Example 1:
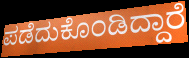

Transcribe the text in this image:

ಪಡೆದುಕೊಂಡಿದ್ದಾರೆ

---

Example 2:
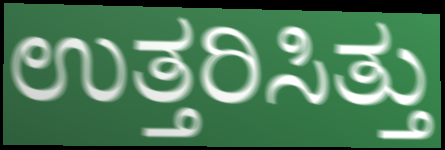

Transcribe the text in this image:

ಉತ್ತರಿಸಿತ್ತು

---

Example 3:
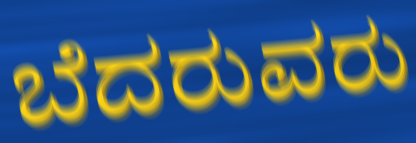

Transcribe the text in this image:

ಬೆದರುವರು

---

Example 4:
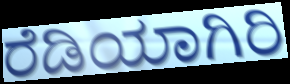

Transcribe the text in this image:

ರೆಡಿಯಾಗಿರಿ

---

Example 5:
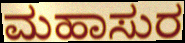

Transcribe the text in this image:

ಮಹಾಸುರ